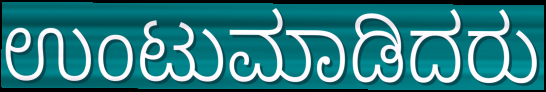
ಉಂಟುಮಾಡಿದರು